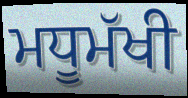
ਮਧੂਮੱਖੀ